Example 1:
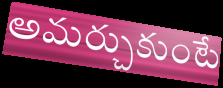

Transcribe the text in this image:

అమర్చుకుంటే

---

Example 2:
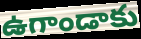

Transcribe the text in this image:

ఉగాండాకు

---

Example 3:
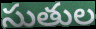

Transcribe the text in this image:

సుతుల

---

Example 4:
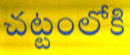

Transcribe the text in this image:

చట్టంలోకి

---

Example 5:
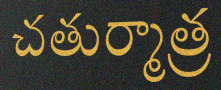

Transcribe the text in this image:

చతుర్మాత్ర